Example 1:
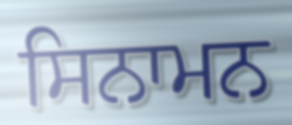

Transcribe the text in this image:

ਸਿਨਾਮਨ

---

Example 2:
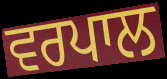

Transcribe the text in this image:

ਵਰਪਾਲ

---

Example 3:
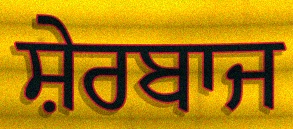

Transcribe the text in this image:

ਸ਼ੇਰਬਾਜ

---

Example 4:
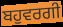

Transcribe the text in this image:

ਬਹੁਵਰਗੀ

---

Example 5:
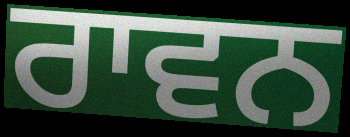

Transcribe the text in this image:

ਰਾਵਨ